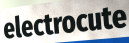
electrocute